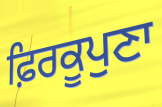
ਫ਼ਿਰਕੂਪੁਣਾ